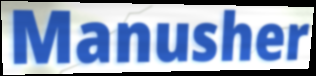
Manusher